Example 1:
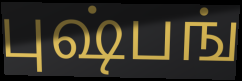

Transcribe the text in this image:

புஷ்பங்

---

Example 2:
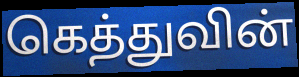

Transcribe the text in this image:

கெத்துவின்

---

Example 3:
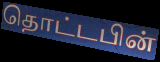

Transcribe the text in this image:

தொட்டபின்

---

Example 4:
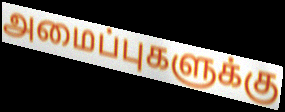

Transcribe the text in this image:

அமைப்புகளுக்கு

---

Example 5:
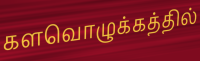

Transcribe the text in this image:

களவொழுக்கத்தில்